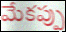
మేకప్పు